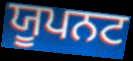
ਯੂਪਨਟ